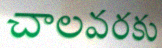
చాలవరకు